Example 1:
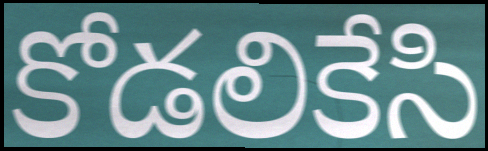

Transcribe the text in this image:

కోడలికేసి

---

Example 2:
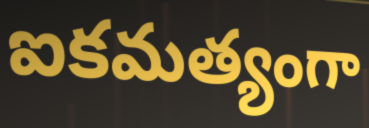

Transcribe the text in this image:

ఐకమత్యంగా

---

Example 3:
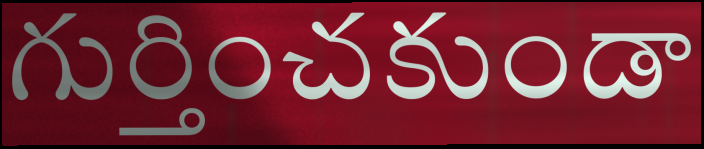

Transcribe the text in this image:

గుర్తించకుండా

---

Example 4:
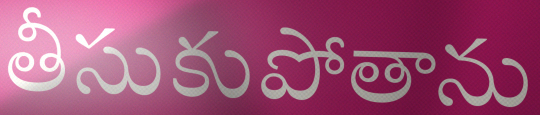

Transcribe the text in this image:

తీసుకుపోతాను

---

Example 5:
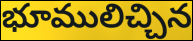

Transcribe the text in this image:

భూములిచ్చిన